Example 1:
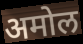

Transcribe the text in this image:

अमोल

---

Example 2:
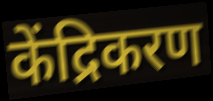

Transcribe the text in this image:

केंद्रिकरण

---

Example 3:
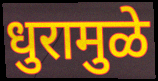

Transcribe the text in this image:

धुरामुळे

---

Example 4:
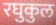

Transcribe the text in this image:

रघुकुल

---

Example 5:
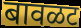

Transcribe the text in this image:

बावळट